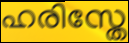
ഹരിസ്തേ